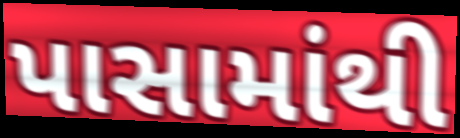
પાસામાંથી